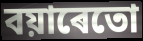
বয়াৰেতো